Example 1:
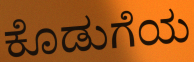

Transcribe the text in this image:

ಕೊಡುಗೆಯ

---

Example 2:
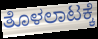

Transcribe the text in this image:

ತೊಳಲಾಟಕ್ಕೆ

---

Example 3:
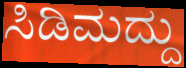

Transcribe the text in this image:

ಸಿಡಿಮದ್ದು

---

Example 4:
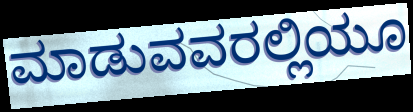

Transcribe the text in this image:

ಮಾಡುವವರಲ್ಲಿಯೂ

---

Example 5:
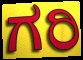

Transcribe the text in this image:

ಗರಿ